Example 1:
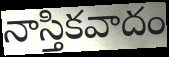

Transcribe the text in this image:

నాస్తికవాదం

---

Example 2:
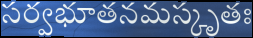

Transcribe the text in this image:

సర్వభూతనమస్కృతః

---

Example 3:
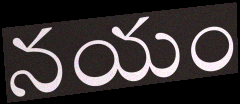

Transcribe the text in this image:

నయం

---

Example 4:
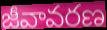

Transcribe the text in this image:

జీవావరణ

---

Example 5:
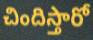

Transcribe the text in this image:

చిందిస్తారో